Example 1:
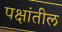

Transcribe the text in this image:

पक्षांतील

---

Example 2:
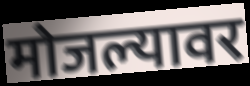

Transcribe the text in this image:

मोजल्यावर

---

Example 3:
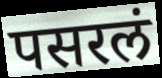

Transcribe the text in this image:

पसरलं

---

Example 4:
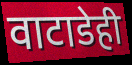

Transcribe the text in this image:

वाटाडेही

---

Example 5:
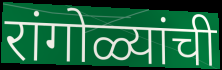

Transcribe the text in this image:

रांगोळ्यांची